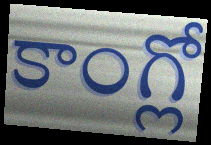
కాంగ్లో